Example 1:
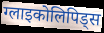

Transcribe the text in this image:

ग्लाइकोलिपिड्स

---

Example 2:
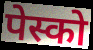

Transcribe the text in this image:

पेस्को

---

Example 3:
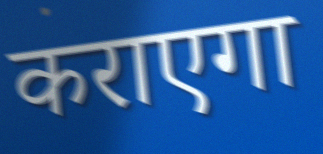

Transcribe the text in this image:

कराएगा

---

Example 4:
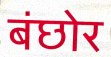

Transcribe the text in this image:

बंछोर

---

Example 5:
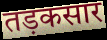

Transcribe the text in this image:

तड़कसार